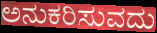
ಅನುಕರಿಸುವದು